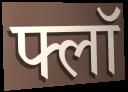
फ्लॉ